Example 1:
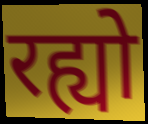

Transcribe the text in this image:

रह्यो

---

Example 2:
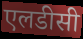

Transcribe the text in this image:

एलडीसी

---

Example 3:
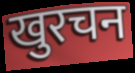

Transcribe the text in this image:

खुरचन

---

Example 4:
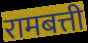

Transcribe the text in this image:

रामबत्ती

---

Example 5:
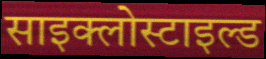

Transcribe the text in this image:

साइक्लोस्टाइल्ड